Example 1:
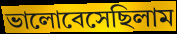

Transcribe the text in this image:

ভালোবেসেছিলাম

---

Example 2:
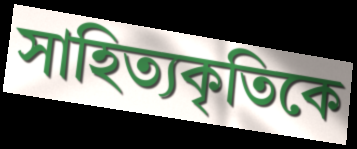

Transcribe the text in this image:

সাহিত্যকৃতিকে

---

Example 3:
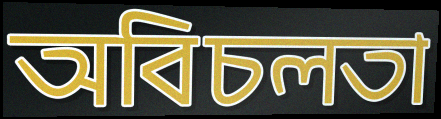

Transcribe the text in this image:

অবিচলতা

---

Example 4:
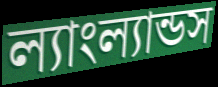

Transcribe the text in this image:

ল্যাংল্যান্ডস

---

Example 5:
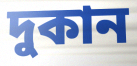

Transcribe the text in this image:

দুকান